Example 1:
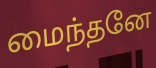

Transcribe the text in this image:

மைந்தனே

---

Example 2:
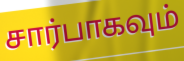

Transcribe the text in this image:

சார்பாகவும்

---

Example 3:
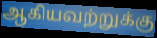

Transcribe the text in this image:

ஆகியவற்றுக்கு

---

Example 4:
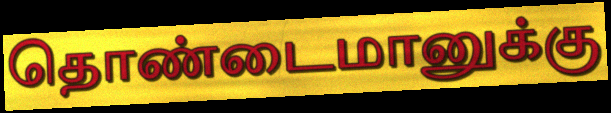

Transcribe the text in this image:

தொண்டைமானுக்கு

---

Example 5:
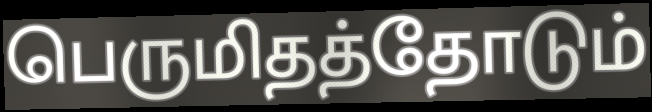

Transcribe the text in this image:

பெருமிதத்தோடும்